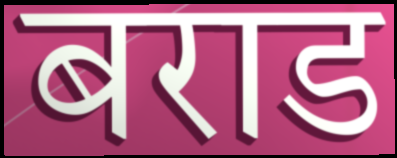
बराड